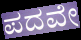
ಪದವೇ